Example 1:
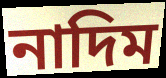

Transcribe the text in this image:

নাদিম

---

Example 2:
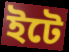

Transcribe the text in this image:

ইটে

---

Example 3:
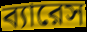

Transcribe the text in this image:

ব্যারেস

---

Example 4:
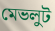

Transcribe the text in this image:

মেভলুট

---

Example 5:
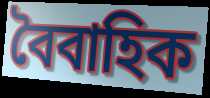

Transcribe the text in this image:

বৈবাহিক